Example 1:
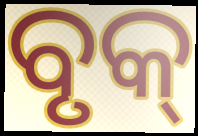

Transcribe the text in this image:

ବୃକ୍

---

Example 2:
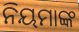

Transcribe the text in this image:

ନିୟମାଙ୍କ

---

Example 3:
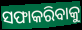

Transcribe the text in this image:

ସଫାକରିବାକୁ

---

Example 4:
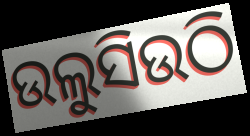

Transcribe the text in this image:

ଉଲୁସିଉଠି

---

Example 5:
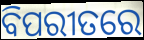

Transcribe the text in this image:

ବିପରୀତରେ